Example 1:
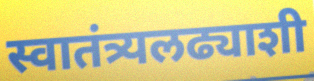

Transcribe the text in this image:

स्वातंत्र्यलढ्याशी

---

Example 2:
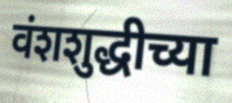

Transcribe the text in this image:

वंशशुद्धीच्या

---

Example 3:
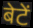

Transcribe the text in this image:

बेटें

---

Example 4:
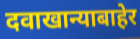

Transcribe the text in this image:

दवाखान्याबाहेर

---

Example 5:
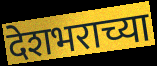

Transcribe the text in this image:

देशभराच्या